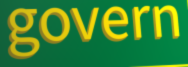
govern